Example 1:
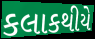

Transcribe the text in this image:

કલાકથીયે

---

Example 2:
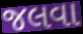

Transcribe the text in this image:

જલવા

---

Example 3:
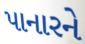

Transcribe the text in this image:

પાનારને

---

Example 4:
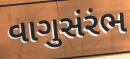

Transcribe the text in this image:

વાગુસંરંભ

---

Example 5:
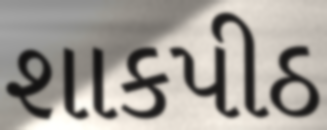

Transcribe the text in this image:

શાકપીઠ